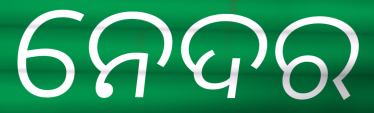
ନେଦର